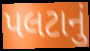
પલટાનું